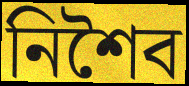
নিশৈব